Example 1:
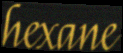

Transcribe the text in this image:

hexane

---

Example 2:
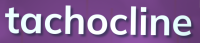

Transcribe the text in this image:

tachocline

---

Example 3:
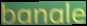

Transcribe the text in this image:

banale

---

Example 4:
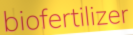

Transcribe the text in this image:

biofertilizer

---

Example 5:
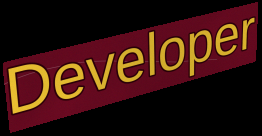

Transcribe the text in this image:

Developer